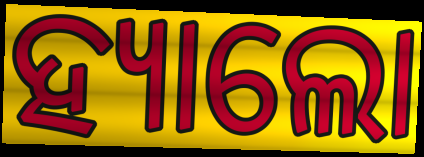
ହ୍ୟାଲୋ